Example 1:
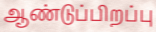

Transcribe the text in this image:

ஆண்டுப்பிறப்பு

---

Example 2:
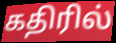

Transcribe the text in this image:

கதிரில்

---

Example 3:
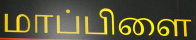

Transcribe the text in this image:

மாப்பிளை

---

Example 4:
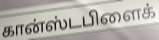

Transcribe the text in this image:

கான்ஸ்டபிளைக்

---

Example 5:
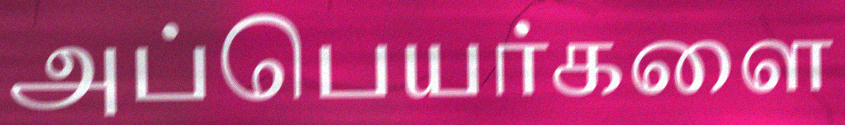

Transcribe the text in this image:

அப்பெயர்களை